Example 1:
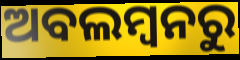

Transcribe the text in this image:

ଅବଲମ୍ବନରୁ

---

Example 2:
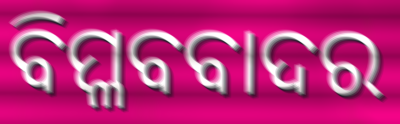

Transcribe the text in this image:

ବିପ୍ଳବବାଦର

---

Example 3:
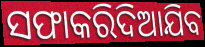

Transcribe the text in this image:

ସଫାକରିଦିଆଯିବ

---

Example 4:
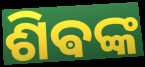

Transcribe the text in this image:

ଶିଵଙ୍କ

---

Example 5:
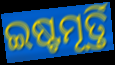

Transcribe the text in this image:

ଇଷ୍ଟମୂର୍ତ୍ତି